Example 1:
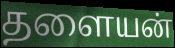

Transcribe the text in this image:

தளையன்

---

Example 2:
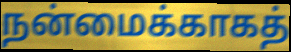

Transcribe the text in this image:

நன்மைக்காகத்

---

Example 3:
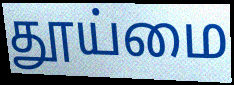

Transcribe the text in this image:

தூய்மை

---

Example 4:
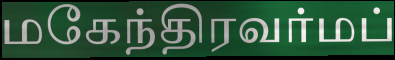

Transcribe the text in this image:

மகேந்திரவர்மப்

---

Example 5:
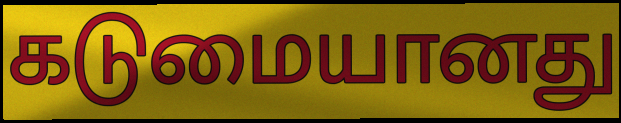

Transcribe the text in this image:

கடுமையானது